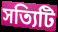
সত্যিটি